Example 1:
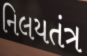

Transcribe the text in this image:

નિલયતંત્ર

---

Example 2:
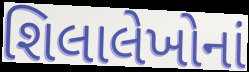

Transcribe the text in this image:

શિલાલેખોનાં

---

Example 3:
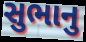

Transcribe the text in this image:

સુભાનુ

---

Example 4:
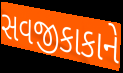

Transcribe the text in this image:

સવજીકાકાને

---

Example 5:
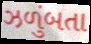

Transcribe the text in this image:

ઝળુંબતા